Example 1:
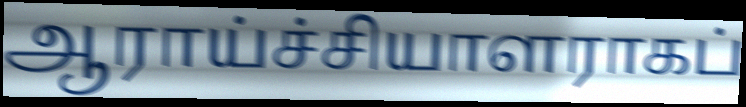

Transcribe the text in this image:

ஆராய்ச்சியாளராகப்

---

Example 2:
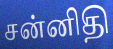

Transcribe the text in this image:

சன்னிதி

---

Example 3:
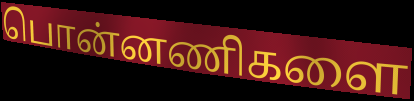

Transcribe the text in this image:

பொன்னணிகளை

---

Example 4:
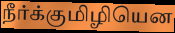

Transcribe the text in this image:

நீர்க்குமிழியென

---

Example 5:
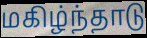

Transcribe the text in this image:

மகிழ்ந்தாடு